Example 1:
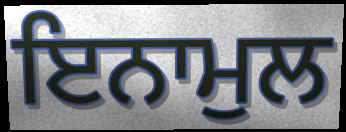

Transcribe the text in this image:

ਇਨਾਮੁਲ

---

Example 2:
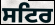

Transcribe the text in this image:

ਸਟਿਰ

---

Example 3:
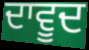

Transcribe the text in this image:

ਦਾਵੂਦ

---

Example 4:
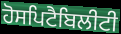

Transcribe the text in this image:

ਹੋਸਪਿਟੈਬਿਲੀਟੀ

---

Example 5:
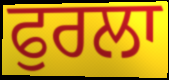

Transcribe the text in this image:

ਫੁਰਲਾ